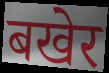
बखेर